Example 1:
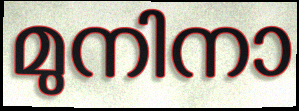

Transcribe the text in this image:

മുനിനാ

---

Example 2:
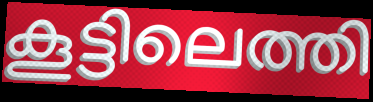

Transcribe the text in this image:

കൂട്ടിലെത്തി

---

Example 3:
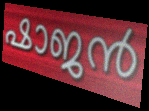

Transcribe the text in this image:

ഷാജൻ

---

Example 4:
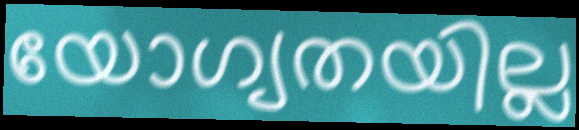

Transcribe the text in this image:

യോഗ്യതയില്ല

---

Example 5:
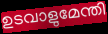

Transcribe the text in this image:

ഉടവാളുമേന്തി